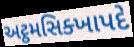
અટ્ઠમસિક્ખાપદે